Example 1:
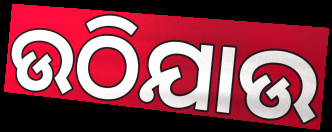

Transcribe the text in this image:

ଉଠିଯାଉ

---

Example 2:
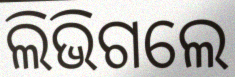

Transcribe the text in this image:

ଲିଭିଗଲେ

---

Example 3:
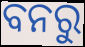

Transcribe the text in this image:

ବନରୁ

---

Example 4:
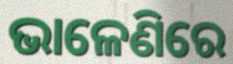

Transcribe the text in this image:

ଭାଳେଣିରେ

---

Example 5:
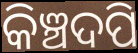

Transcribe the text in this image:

କିଞ୍ଚଦପି